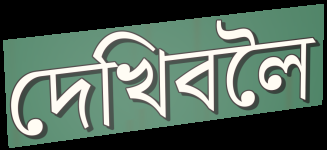
দেখিবলৈ